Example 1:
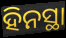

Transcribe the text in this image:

ହିନସ୍ଥା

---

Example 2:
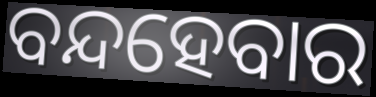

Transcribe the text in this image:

ବନ୍ଦହେବାର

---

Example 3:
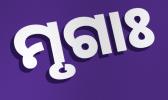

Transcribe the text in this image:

ମୃଗାଃ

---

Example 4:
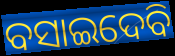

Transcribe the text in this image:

ବସାଇଦେବି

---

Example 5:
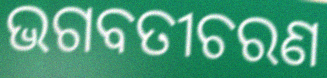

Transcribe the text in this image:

ଭଗବତୀଚରଣ